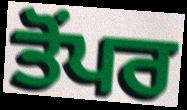
ਤੋਂਪਰ